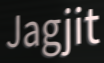
Jagjit